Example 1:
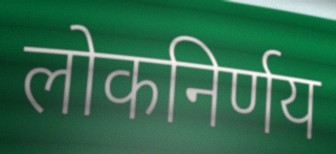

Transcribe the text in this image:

लोकनिर्णय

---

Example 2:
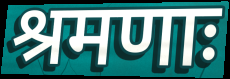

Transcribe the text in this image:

श्रमणाः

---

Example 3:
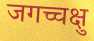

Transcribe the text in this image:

जगच्चक्षु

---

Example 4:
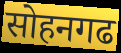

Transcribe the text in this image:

सोहनगढ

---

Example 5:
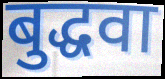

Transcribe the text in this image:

बुद्धवा